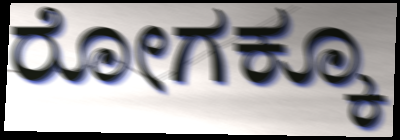
ರೋಗಕ್ಕೂ